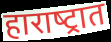
हाराष्ट्रात